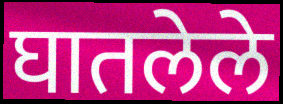
घातलेले